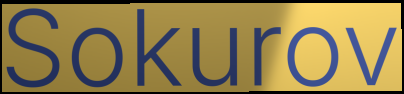
Sokurov